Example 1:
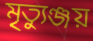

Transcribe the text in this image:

মৃত্যুঞ্জয়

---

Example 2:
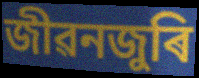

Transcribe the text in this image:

জীৱনজুৰি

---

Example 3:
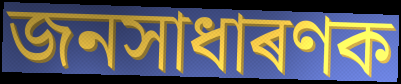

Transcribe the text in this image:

জনসাধাৰণক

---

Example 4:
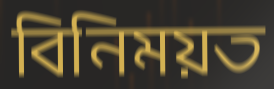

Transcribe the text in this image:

বিনিময়ত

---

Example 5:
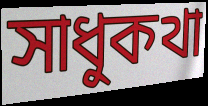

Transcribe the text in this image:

সাধুকথা